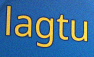
lagtu